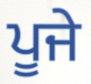
ਪੂਜੇ